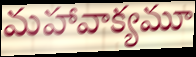
మహావాక్యమూ